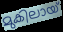
മുകിലായ്